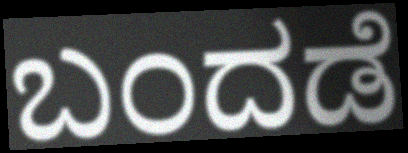
ಬಂದಡೆ